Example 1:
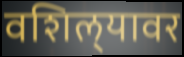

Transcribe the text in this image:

वशिल्यावर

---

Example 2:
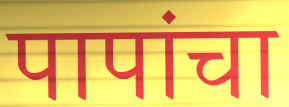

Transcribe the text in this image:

पापांचा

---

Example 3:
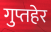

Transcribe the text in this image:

गुप्तहेर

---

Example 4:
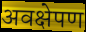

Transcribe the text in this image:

अवक्षेपण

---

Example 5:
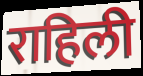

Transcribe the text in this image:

राहिली